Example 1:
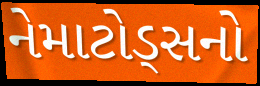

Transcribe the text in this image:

નેમાટોડ્સનો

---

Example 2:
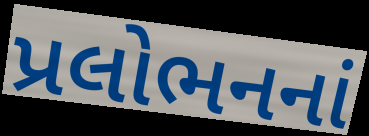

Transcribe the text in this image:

પ્રલોભનનાં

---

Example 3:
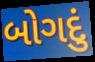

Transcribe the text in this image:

બોગદું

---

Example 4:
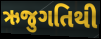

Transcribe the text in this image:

ઋજુગતિથી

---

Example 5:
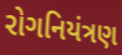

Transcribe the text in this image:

રોગનિયંત્રણ